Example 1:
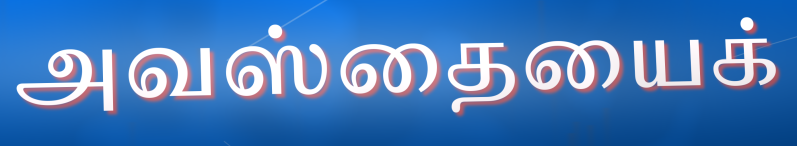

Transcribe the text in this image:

அவஸ்தையைக்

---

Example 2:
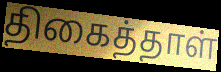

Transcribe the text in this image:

திகைத்தாள்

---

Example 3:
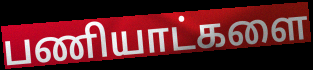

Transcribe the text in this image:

பணியாட்களை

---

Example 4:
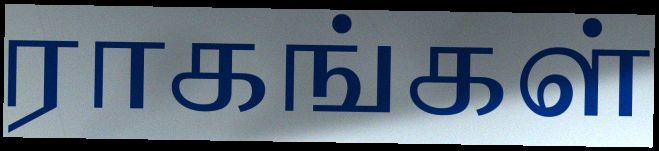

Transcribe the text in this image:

ராகங்கள்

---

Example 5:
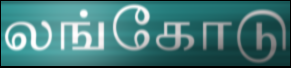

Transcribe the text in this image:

லங்கோடு